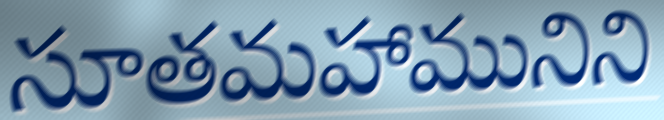
సూతమహామునిని